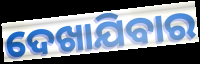
ଦେଖାଯିବାର